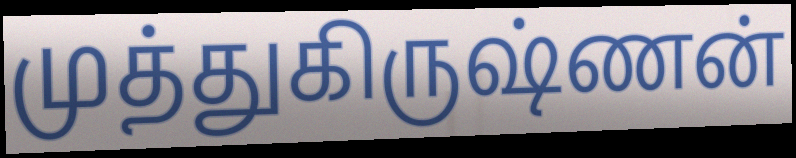
முத்துகிருஷ்ணன்